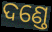
ଦଣ୍ଡେ